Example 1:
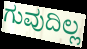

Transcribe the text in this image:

ಗುವುದಿಲ್ಲ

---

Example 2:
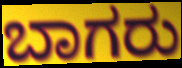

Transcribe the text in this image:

ಬಾಗರು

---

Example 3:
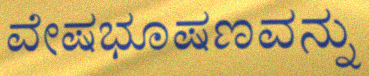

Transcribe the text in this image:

ವೇಷಭೂಷಣವನ್ನು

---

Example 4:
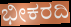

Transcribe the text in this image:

ಭೀಕರದಿ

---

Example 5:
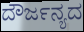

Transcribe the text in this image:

ದೌರ್ಜನ್ಯದ